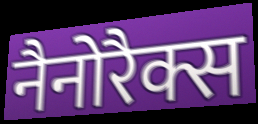
नैनोरैक्स